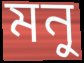
মনু